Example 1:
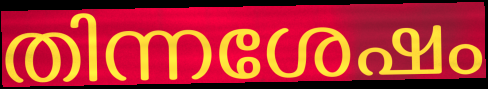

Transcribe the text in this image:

തിന്നശേഷം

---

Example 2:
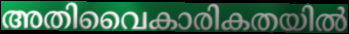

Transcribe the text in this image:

അതിവൈകാരികതയിൽ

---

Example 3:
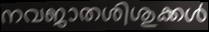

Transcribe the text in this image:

നവജാതശിശുക്കൾ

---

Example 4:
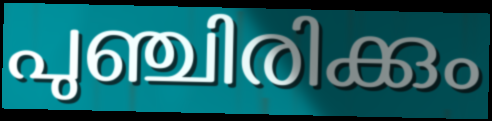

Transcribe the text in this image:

പുഞ്ചിരിക്കും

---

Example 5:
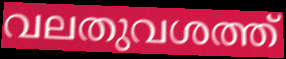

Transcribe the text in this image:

വലതുവശത്ത്